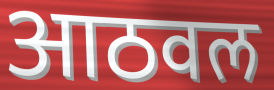
आठवल